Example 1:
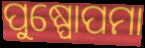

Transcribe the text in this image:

ପୁଷ୍ପୋପମା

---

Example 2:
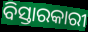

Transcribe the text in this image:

ବିସ୍ତାରକାରୀ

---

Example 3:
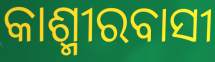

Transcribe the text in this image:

କାଶ୍ମୀରବାସୀ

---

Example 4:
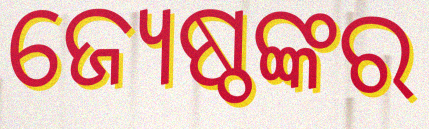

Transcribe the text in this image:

ଜ୍ୟେଷ୍ଠଙ୍କର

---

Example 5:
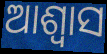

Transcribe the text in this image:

ଆଶ୍ୱାସ